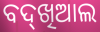
ବଦ୍‌ଖିଆଲ